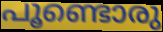
പൂണ്ടൊരു